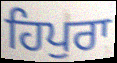
ਹਿਪੁਰਾ